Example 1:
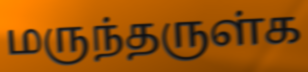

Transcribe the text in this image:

மருந்தருள்க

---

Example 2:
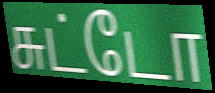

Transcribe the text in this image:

சுட்டோ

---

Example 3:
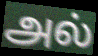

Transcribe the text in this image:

அல்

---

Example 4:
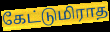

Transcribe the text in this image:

கேட்டுமிராத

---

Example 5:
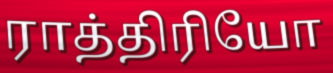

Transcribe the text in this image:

ராத்திரியோ